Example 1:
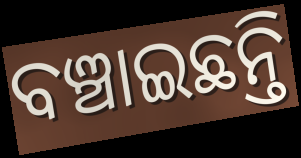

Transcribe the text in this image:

ବଞ୍ଚାଇଛନ୍ତି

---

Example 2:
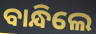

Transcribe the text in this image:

ବାନ୍ଧିଲେ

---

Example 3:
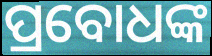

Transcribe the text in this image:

ପ୍ରବୋଧଙ୍କ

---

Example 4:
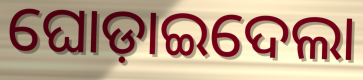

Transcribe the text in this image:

ଘୋଡ଼ାଇଦେଲା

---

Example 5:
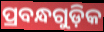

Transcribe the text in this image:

ପ୍ରବନ୍ଧଗୁଡ଼ିକ